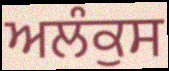
ਅਲੰਕੁਸ